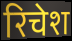
रिचेश